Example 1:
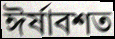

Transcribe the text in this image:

ঈর্ষাবশত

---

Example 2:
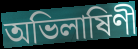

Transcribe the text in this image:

অভিলাষিণী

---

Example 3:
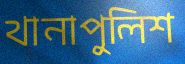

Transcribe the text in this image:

থানাপুলিশ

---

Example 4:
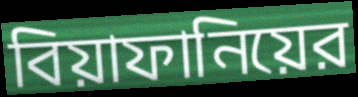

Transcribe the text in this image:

বিয়াফানিয়ের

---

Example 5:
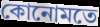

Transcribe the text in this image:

কোনোমতে